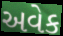
અવેક